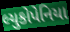
લ્યુકોપેનિયા